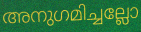
അനുഗമിച്ചല്ലോ